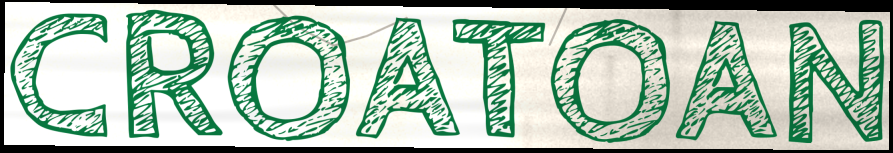
CROATOAN